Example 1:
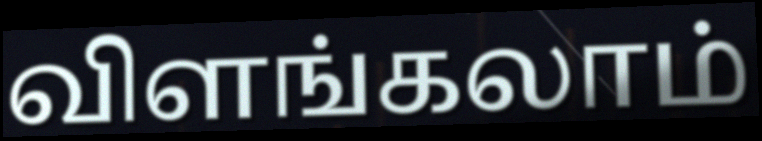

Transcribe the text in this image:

விளங்கலாம்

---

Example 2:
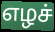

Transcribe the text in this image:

எழச்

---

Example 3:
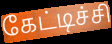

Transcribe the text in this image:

கேட்டிச்சி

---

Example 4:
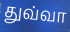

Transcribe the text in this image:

துவ்வா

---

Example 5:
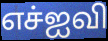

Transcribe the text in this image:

எச்ஐவி